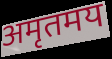
अमृतमय